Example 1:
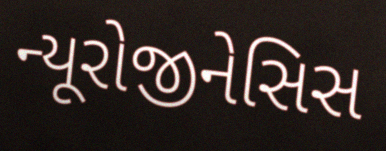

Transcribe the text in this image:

ન્યૂરોજીનેસિસ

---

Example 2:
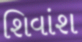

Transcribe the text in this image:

શિવાંશ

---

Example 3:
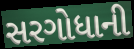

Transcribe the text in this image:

સરગોધાની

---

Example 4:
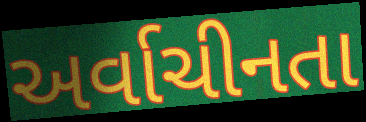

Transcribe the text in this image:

અર્વાચીનતા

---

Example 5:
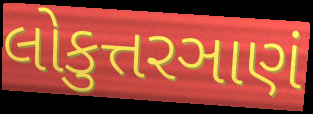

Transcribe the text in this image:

લોકુત્તરઞાણં